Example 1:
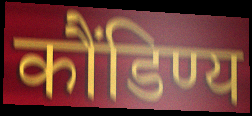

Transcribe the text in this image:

कौंडिण्य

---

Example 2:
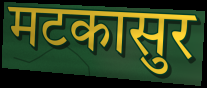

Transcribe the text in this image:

मटकासुर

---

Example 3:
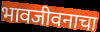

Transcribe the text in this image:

भावजीवनाचा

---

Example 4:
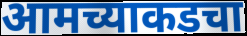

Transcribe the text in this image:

आमच्याकडचा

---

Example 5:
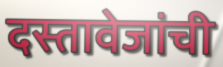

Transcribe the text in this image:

दस्तावेजांची